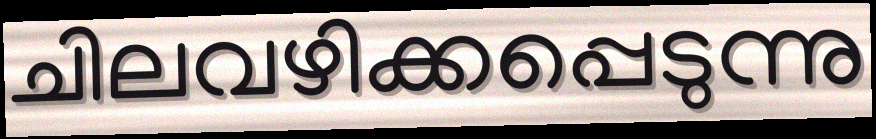
ചിലവഴിക്കപ്പെടുന്നു